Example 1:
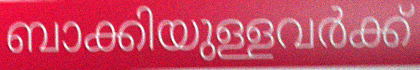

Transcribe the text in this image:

ബാക്കിയുള്ളവർക്ക്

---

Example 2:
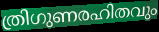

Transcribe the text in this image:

ത്രിഗുണരഹിതവും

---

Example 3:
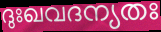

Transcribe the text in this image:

ദുഃഖവദന്യതഃ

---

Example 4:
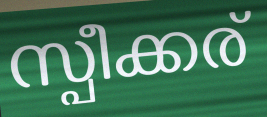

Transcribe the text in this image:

സ്പീക്കര്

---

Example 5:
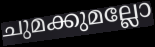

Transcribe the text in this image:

ചുമക്കുമല്ലോ